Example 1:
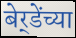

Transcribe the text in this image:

बेर्डेंच्या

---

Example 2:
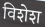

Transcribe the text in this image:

विशेश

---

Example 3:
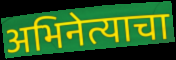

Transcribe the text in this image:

अभिनेत्याचा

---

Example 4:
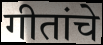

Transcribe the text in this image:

गीतांचे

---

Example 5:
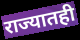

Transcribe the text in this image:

राज्यातही